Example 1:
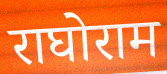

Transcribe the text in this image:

राघोराम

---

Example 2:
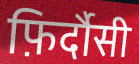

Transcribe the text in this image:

फ़िर्दौसी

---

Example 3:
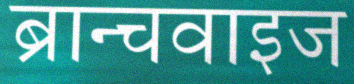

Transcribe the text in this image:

ब्रान्चवाइज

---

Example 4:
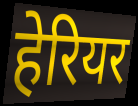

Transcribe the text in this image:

हेरियर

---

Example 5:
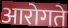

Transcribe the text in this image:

आरोगते